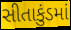
સીતાકુંડમાં